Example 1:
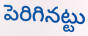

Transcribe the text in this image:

పెరిగినట్టు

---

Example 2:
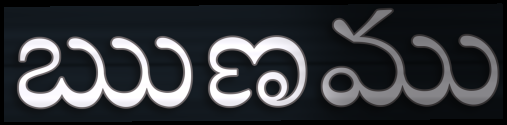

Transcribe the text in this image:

ఋణము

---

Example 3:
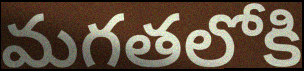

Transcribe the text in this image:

మగతలోకి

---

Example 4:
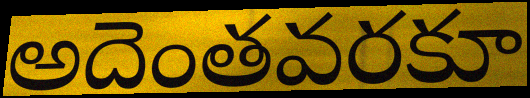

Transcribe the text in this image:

అదెంతవరకూ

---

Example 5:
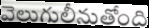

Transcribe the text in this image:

వెలుగులీనుతోంది